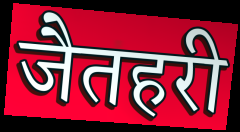
जैतहरी